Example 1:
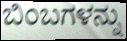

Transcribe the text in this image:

ಬಿಂಬಗಳನ್ನು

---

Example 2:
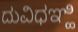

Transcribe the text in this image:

ದುವಿಧಞ್ಹಿ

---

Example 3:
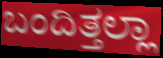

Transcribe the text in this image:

ಬಂದಿತ್ತಲ್ಲಾ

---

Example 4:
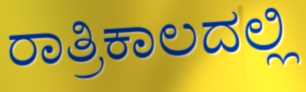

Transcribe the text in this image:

ರಾತ್ರಿಕಾಲದಲ್ಲಿ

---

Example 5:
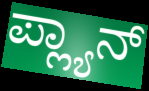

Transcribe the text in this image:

ಪ್ಲ್ಯಾನ್